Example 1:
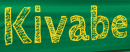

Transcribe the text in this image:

Kivabe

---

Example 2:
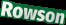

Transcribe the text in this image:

Rowson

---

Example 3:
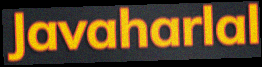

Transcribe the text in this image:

Javaharlal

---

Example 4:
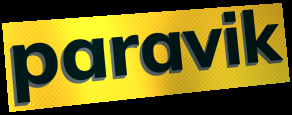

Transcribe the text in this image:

paravik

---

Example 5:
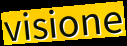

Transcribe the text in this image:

visione